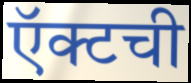
ऍक्टची